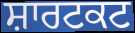
ਸ਼ਾਰਟਕਟ